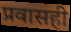
प्रवासही